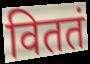
विततं